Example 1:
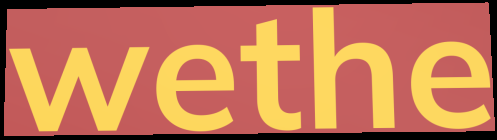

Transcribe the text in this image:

wethe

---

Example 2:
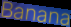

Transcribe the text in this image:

Banana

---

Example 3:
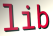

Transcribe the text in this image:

lib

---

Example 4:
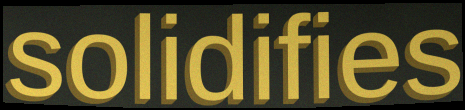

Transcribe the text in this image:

solidifies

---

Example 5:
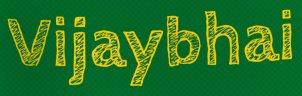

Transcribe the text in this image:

Vijaybhai